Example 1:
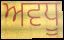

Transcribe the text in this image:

ਅਵਧੂ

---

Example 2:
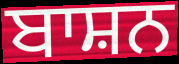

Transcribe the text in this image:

ਬਾਸ਼ਨ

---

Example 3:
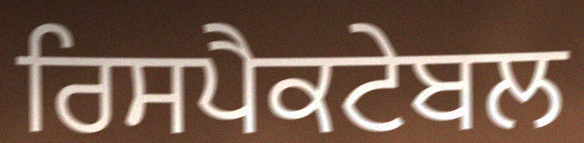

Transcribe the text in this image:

ਰਿਸਪੈਕਟੇਬਲ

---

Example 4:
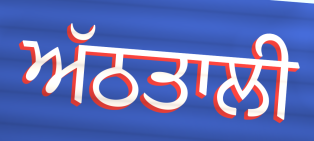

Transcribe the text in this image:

ਅੱਠਤਾਲੀ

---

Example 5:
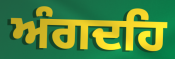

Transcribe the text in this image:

ਅੰਗਦਹਿ